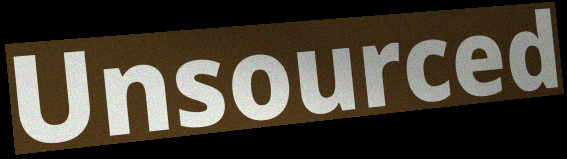
Unsourced